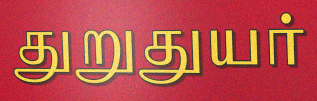
துறுதுயர்